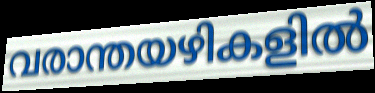
വരാന്തയഴികളിൽ